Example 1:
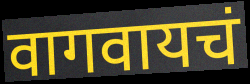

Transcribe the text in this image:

वागवायचं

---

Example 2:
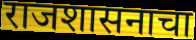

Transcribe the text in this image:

राजशासनाचा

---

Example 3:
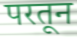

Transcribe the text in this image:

परतून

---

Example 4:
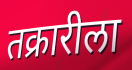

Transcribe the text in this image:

तक्रारीला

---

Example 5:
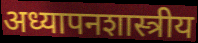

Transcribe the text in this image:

अध्यापनशास्त्रीय